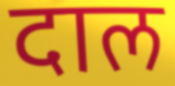
दाल